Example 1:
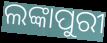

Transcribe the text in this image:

ଲଙ୍କାପୁରୀ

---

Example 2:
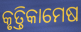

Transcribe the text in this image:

କୃତ୍ତିକାମେଷ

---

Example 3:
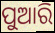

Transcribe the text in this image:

ପୁଆରି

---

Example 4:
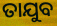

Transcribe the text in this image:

ତାଯୁବ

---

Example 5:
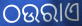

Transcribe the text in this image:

ଠଉରାଏ